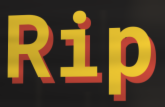
Rip